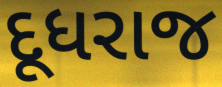
દૂધરાજ